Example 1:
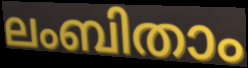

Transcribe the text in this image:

ലംബിതാം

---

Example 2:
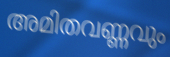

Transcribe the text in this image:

അമിതവണ്ണവും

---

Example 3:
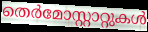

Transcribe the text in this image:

തെർമോസ്റ്റാറ്റുകൾ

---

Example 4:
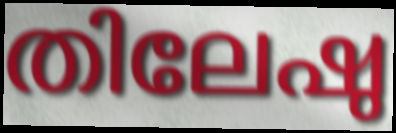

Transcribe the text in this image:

തിലേഷു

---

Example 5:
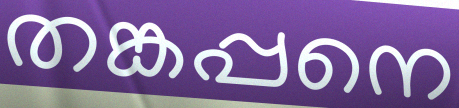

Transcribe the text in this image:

തങ്കപ്പനെ